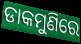
ଡାକମୁଣିରେ